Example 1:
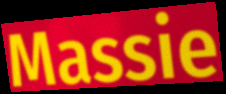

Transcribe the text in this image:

Massie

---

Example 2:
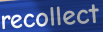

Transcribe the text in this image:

recollect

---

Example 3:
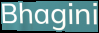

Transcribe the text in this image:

Bhagini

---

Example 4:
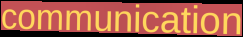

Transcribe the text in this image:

communication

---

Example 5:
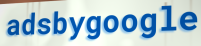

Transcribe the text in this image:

adsbygoogle